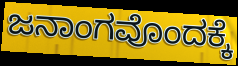
ಜನಾಂಗವೊಂದಕ್ಕೆ